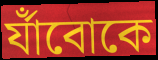
র্যাঁবোকে